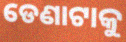
ଡେଣାଟାକୁ